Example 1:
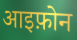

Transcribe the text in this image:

आइफ़ोन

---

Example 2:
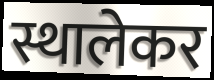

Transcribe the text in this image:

स्थालेकर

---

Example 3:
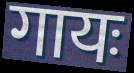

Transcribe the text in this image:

गायः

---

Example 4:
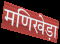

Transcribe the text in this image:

मणिखेड़ा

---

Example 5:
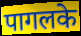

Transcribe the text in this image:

पागलके